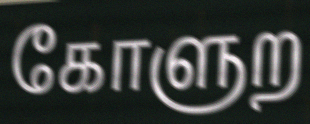
கோளுற